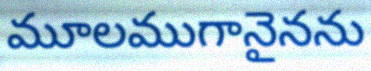
మూలముగానైనను